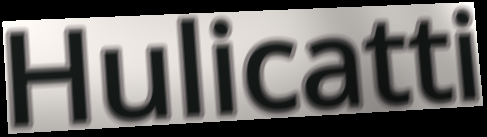
Hulicatti